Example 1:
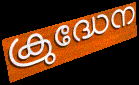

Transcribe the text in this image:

ക്രുദ്ധേന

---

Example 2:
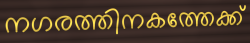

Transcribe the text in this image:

നഗരത്തിനകത്തേക്ക്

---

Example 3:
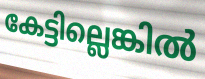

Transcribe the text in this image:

കേട്ടില്ലെങ്കിൽ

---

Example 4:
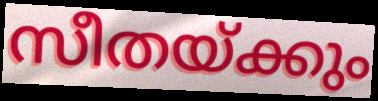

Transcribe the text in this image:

സീതയ്ക്കും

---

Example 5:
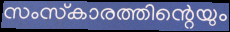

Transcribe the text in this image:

സംസ്‌കാരത്തിന്റെയും